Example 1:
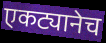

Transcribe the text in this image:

एकट्यानेच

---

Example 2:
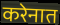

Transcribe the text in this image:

करेनात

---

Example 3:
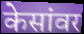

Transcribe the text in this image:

केसांवर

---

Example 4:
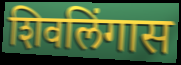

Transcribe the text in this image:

शिवलिंगास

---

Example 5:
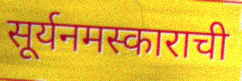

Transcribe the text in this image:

सूर्यनमस्काराची